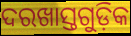
ଦରଖାସ୍ତଗୁଡ଼ିକ